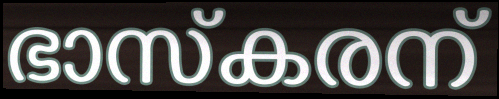
ഭാസ്‌കരന്